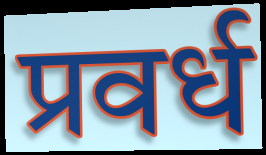
प्रवर्ध